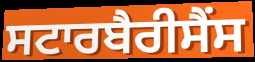
ਸਟਾਰਬੈਰੀਸੈਂਸ